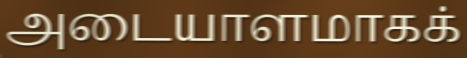
அடையாளமாகக்